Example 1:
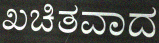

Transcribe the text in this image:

ಖಚಿತವಾದ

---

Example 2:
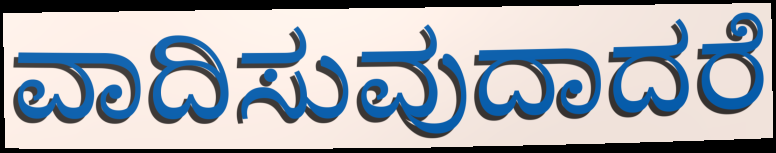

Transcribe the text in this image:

ವಾದಿಸುವುದಾದರೆ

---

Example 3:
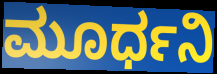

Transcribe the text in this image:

ಮೂರ್ಧನಿ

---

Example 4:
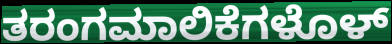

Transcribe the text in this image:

ತರಂಗಮಾಲಿಕೆಗಳೊಳ್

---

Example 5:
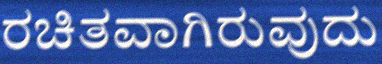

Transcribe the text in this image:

ರಚಿತವಾಗಿರುವುದು